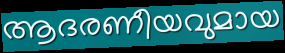
ആദരണീയവുമായ